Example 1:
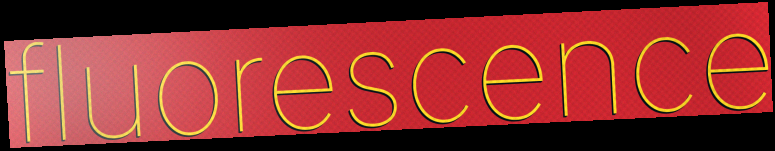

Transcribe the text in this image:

fluorescence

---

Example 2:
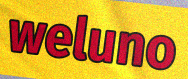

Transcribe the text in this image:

weluno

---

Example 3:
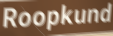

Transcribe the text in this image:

Roopkund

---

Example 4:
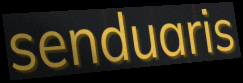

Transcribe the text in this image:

senduaris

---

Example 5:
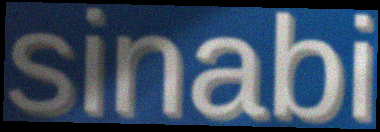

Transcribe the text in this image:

sinabi